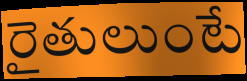
రైతులుంటే